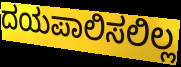
ದಯಪಾಲಿಸಲಿಲ್ಲ